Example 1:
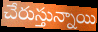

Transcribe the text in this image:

చేరుస్తున్నాయి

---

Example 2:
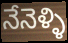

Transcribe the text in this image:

నేనెళ్ళి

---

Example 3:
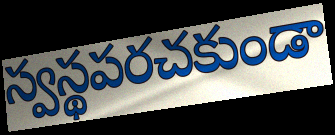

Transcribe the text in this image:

స్వస్థపరచకుండా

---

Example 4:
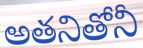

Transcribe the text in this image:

అతనితోనీ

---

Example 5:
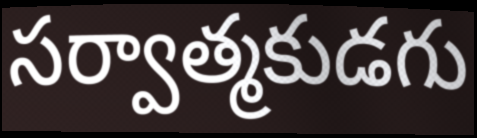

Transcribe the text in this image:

సర్వాత్మకుడగు